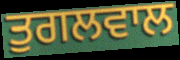
ਤੁਗਲਵਾਲ